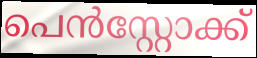
പെൻസ്റ്റോക്ക്